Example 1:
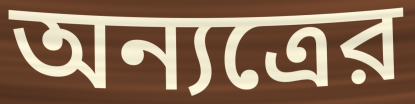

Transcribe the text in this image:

অন্যত্রের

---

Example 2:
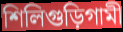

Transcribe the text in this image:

শিলিগুড়িগামী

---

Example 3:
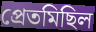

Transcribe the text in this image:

প্রেতমিছিল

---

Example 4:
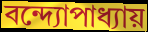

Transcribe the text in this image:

বন্দ্যোপাধ্যায়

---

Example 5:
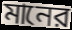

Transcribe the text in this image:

মানের